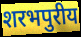
शरभपुरीय